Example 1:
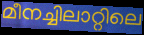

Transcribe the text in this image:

മീനച്ചിലാറ്റിലെ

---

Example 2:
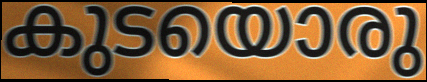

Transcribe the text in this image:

കുടയൊരു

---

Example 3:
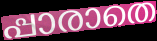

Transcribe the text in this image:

പ്പാരാതെ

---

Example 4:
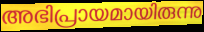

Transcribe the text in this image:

അഭിപ്രായമായിരുന്നു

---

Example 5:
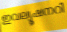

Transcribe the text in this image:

ഇവല്യൂഷനറി